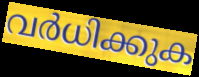
വർധിക്കുക